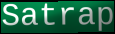
Satrap